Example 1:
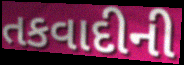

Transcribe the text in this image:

તકવાદીની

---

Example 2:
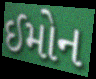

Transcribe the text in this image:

ઈમોન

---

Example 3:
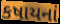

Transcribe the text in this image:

કષાયનાં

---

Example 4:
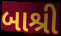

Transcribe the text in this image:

બાશ્રી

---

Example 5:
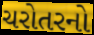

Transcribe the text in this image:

ચરોતરનો